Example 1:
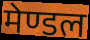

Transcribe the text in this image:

मेण्डल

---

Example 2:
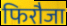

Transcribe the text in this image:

फिरौजा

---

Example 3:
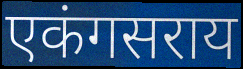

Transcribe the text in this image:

एकंगसराय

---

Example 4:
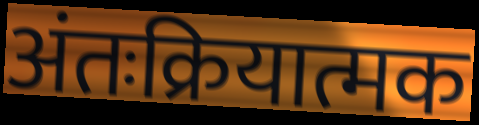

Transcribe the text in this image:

अंतःक्रियात्मक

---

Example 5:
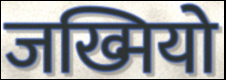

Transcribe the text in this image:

जख्मियो